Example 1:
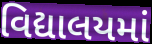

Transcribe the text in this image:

વિદ્યાલયમાં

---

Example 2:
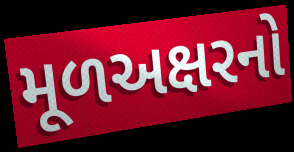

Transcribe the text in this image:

મૂળઅક્ષરનો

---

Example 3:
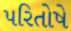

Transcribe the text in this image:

પરિતોષે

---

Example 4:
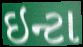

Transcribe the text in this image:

ઇન્ટા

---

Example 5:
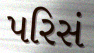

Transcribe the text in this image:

પરિસં